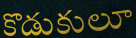
కొడుకులూ